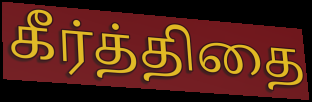
கீர்த்திதை